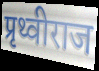
प्रृथ्वीराज